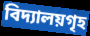
বিদ্যালয়গৃহ